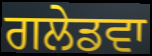
ਗਲੇਡਵਾ